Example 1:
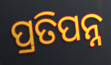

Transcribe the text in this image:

ପ୍ରତିପନ୍ନ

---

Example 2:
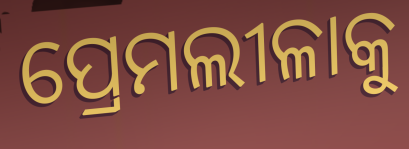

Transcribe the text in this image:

ପ୍ରେମଲୀଳାକୁ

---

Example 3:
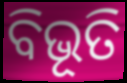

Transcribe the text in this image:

ବିଭୂତି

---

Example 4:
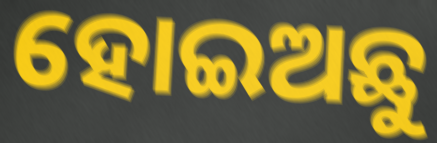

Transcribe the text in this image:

ହୋଇଅଛୁ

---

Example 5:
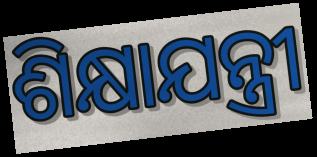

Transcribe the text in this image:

ଶିକ୍ଷାଯନ୍ତ୍ରୀ